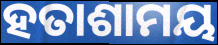
ହତାଶାମୟ